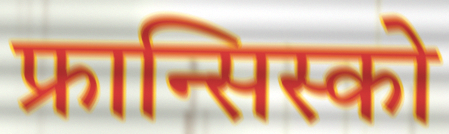
फ्रान्सिस्को